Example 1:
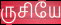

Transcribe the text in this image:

ருசியே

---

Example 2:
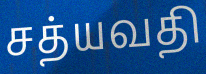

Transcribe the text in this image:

சத்யவதி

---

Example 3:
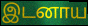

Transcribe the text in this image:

இடனாய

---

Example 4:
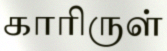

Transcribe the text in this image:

காரிருள்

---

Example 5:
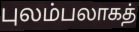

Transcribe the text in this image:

புலம்பலாகத்